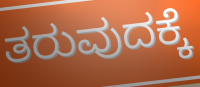
ತರುವುದಕ್ಕೆ